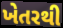
ખેતરથી